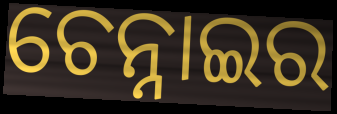
ଚେନ୍ନାଇର